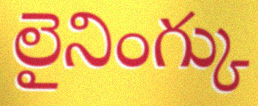
లైనింగ్కు